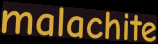
malachite